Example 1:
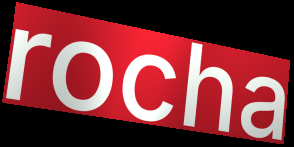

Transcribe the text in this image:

rocha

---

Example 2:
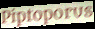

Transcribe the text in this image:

Piptoporus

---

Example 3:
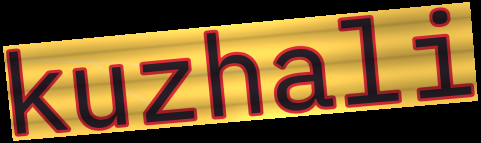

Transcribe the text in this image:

kuzhali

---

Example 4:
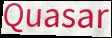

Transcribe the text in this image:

Quasar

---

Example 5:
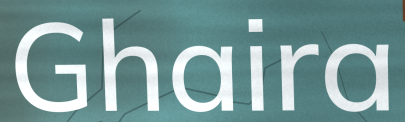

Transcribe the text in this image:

Ghaira